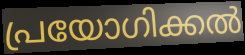
പ്രയോഗിക്കൽ